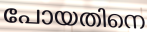
പോയതിനെ